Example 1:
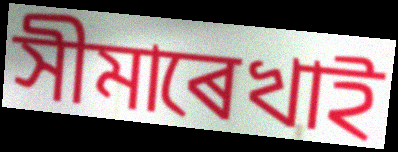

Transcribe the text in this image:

সীমাৰেখাই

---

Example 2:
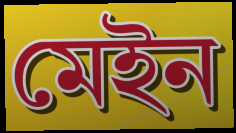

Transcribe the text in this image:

মেইন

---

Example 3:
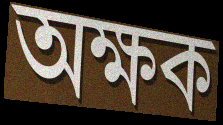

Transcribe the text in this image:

অক্ষক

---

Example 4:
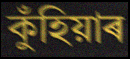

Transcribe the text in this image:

কুঁহিয়াৰ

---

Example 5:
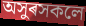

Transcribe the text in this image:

অসুৰসকলে